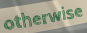
otherwise